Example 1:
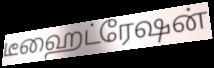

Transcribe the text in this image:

டீஹைட்ரேஷன்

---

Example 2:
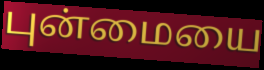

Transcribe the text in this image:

புன்மையை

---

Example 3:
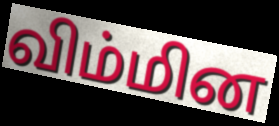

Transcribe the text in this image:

விம்மின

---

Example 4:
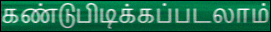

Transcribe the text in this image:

கண்டுபிடிக்கப்படலாம்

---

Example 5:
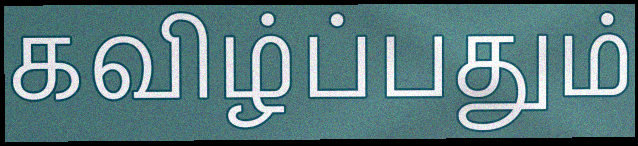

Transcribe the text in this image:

கவிழ்ப்பதும்